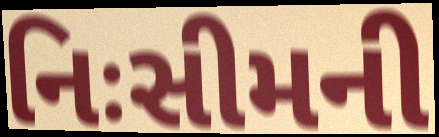
નિઃસીમની